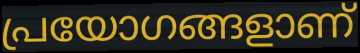
പ്രയോഗങ്ങളാണ്